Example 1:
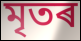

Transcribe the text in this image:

মৃতৰ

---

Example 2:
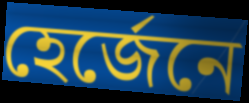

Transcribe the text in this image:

হেৰ্জেনে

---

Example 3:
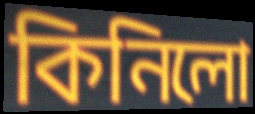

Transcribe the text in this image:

কিনিলো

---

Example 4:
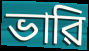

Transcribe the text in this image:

ভাৱি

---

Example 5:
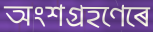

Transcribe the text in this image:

অংশগ্ৰহণেৰে